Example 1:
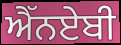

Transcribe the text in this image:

ਐੱਨਏਬੀ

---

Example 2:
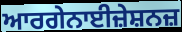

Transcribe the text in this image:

ਆਰਗੇਨਾਈਜ਼ੇਸ਼ਨਜ਼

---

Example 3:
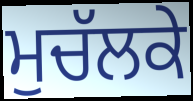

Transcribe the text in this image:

ਮੁਚੱਲਕੇ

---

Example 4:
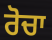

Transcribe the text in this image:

ਰੋਚਾ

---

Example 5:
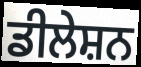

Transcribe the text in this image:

ਡੀਲੇਸ਼ਨ